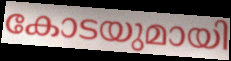
കോടയുമായി